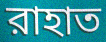
রাহাত